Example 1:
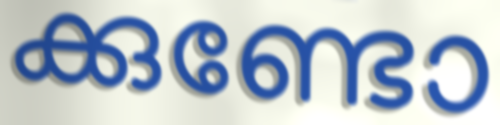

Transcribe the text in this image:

ക്കുണ്ടോ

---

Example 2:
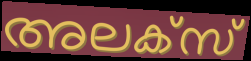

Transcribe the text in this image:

അലക്സ്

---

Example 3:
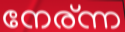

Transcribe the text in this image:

നേര്ന്ന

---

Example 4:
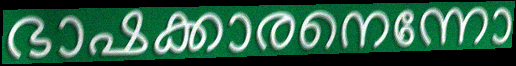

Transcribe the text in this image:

ഭാഷക്കാരനെന്നോ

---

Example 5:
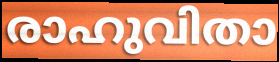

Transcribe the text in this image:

രാഹുവിതാ